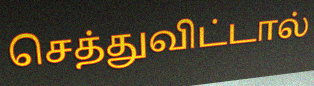
செத்துவிட்டால்